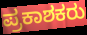
ಪ್ರಕಾಶಕರು